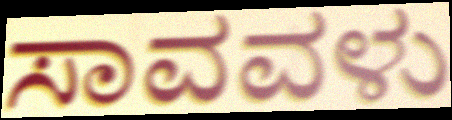
ಸಾವವಳು